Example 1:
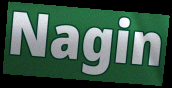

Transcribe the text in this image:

Nagin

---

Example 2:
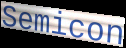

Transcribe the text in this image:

Semicon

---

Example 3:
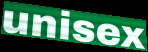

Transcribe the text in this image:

unisex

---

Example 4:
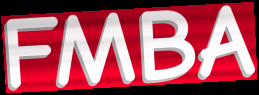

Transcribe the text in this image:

FMBA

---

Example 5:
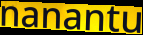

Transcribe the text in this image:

nanantu